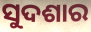
ସୁଦଶାର